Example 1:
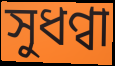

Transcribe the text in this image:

সুধণ্বা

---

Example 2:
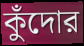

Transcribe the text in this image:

কুঁদোর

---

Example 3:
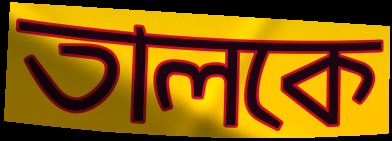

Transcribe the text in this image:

তালকে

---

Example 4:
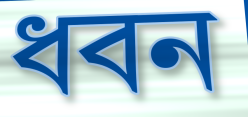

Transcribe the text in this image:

ধবন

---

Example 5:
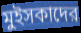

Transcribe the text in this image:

মুইসকাদের